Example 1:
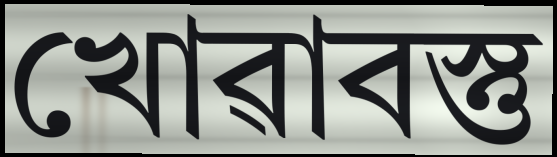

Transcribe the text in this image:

খোৱাবস্তু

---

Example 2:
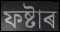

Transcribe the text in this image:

ফষ্টাৰ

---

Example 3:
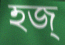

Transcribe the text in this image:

হজ্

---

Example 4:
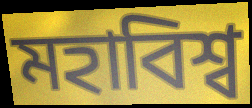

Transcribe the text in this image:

মহাবিশ্ব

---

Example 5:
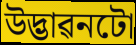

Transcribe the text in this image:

উদ্ভাৱনটো